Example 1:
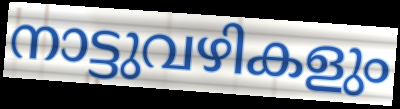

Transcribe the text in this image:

നാട്ടുവഴികളും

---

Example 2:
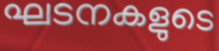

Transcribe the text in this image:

ഘടനകളുടെ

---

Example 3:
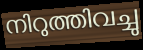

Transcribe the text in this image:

നിറുത്തിവച്ചു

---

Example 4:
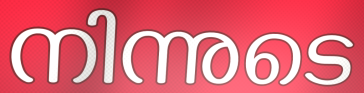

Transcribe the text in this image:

നിന്നുടെ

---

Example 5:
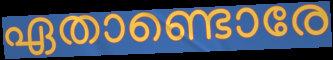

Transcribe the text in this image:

ഏതാണ്ടൊരേ